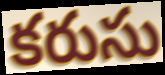
కరుసు